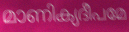
മാണിക്യദീപമേ